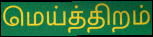
மெய்த்திறம்